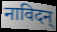
नाविदन्